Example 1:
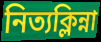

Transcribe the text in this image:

নিত্যক্লিন্না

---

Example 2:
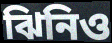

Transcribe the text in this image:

ঝিনিও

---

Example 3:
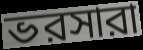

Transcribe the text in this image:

ভরসারা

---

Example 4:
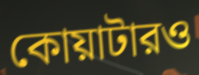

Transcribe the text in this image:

কোয়াটারও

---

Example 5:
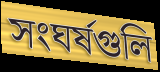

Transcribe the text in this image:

সংঘর্ষগুলি